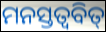
ମନସ୍ତତ୍ୱବିତ୍